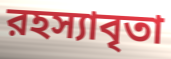
রহস্যাবৃতা